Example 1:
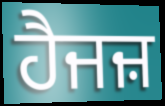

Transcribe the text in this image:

ਹੈਜਜ਼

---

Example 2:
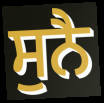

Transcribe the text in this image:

ਸੁਨੈ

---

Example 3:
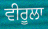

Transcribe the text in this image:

ਵੀਰੂਲਾ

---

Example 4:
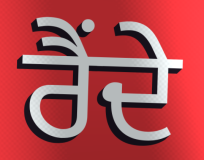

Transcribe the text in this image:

ਰੈਂਦੇ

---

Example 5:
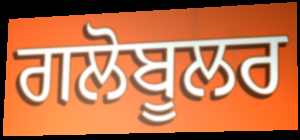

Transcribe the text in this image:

ਗਲੋਬੂਲਰ